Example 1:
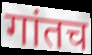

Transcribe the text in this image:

गांतच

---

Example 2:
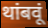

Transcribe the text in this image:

थांबवूं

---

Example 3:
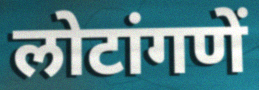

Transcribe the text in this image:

लोटांगणें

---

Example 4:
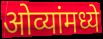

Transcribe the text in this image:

ओव्यांमध्ये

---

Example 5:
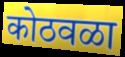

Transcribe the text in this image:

कोठवळा